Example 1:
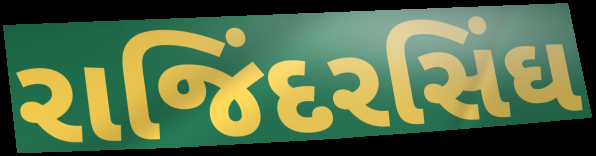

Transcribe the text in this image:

રાજિંદરસિંઘ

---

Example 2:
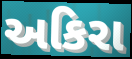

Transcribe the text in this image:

અકિરા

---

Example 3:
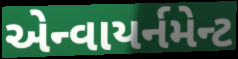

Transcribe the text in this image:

એન્વાયર્નમેન્ટ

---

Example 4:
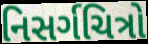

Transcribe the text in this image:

નિસર્ગચિત્રો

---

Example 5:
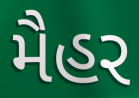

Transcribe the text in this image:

મૈહર